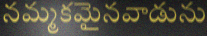
నమ్మకమైనవాడును